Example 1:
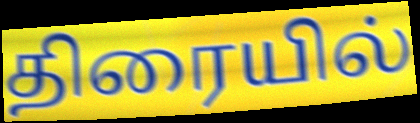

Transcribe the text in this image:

திரையில்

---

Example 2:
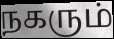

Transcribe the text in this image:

நகரும்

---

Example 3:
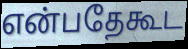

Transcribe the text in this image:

என்பதேகூட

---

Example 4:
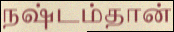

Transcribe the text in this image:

நஷ்டம்தான்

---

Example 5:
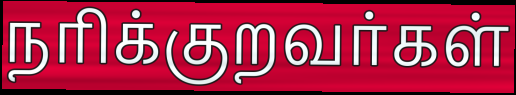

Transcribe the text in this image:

நரிக்குறவர்கள்